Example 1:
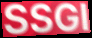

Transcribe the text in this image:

SSGI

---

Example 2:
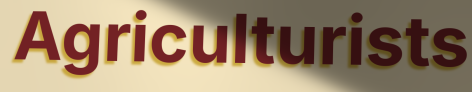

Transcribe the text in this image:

Agriculturists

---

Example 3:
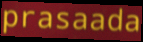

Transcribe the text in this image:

prasaada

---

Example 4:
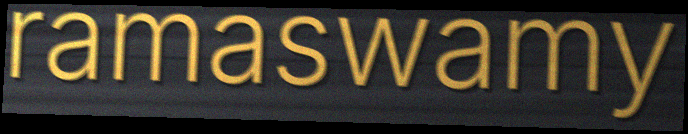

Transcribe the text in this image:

ramaswamy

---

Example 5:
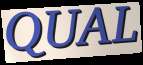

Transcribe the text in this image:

QUAL